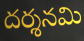
దర్శనమి